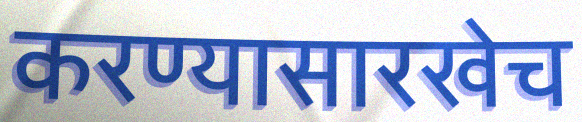
करण्यासारखेच